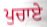
ਪੁਚਾਏ